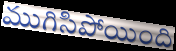
ముగిసిపోయింది